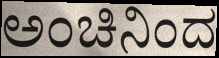
ಅಂಚಿನಿಂದ